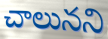
చాలునని